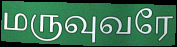
மருவுவரே